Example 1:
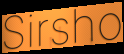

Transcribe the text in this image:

Sirsho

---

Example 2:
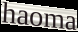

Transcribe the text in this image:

haoma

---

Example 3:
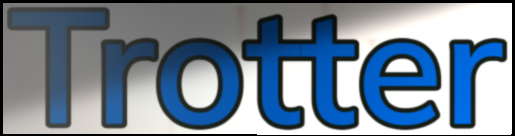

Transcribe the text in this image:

Trotter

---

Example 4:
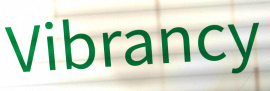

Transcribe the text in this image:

Vibrancy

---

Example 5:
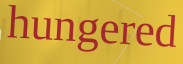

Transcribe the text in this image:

hungered